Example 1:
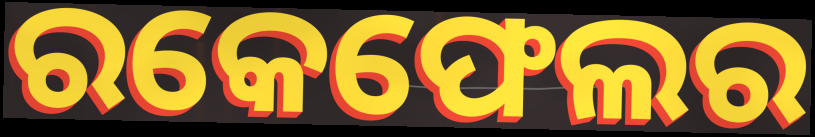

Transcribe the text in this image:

ରକେଫେଲର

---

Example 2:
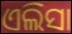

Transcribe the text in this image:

ଏଲିସା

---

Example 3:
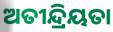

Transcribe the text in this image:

ଅତୀନ୍ଦ୍ରିୟତା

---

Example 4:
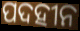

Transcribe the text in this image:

ପଦହୀନ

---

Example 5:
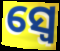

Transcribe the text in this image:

ସ୍ୱେ